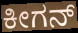
ಕೀಗನ್